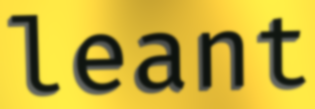
leant